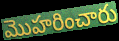
మొహరించారు